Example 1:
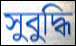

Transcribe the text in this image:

সুবুদ্ধি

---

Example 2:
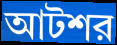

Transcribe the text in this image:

আটশর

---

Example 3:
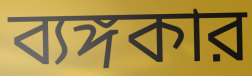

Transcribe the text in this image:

ব্যঙ্গকার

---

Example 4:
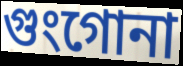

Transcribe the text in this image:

গুংগোনা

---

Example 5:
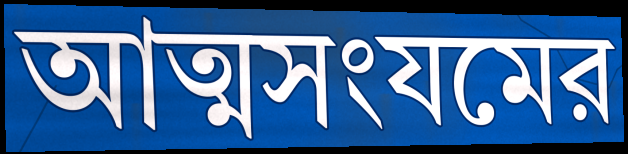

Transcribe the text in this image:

আত্মসংযমের